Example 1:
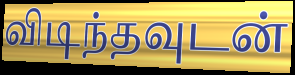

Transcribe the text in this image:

விடிந்தவுடன்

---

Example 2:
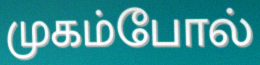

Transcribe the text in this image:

முகம்போல்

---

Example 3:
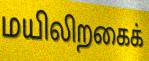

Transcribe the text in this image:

மயிலிறகைக்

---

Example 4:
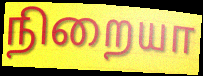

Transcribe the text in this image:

நிறையா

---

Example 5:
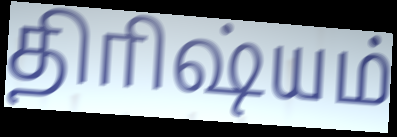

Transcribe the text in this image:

திரிஷ்யம்